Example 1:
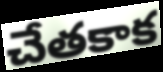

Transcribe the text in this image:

చేతకాక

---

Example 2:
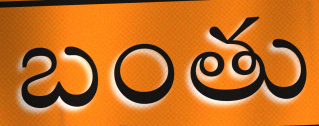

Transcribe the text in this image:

బంతు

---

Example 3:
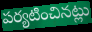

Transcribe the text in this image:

పర్యటించినట్లు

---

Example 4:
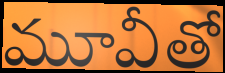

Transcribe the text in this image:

మూవీతో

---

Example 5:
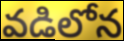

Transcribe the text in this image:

వడిలోన